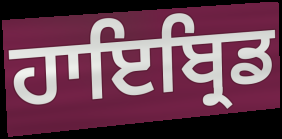
ਹਾਇਬ੍ਰਿਡ